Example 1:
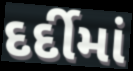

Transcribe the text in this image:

દર્દીમાં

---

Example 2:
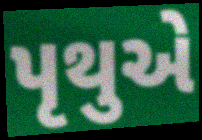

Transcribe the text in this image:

પૃથુએ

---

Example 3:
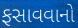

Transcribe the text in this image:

ફસાવવાનો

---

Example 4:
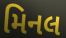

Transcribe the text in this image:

મિનલ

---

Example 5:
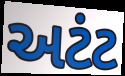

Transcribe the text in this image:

અટંટ